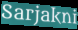
Sarjakni